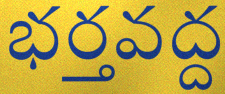
భర్తవద్ద